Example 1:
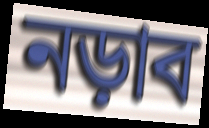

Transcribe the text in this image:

নড়াব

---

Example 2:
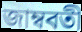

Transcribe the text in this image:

জাম্ববতী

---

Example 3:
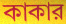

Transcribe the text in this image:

কাকার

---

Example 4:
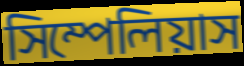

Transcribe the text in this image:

সিম্পেলিয়াস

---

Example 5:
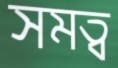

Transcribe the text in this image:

সমত্ব